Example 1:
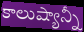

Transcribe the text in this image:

కాలుష్యాన్నీ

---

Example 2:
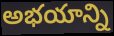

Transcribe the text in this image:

అభయాన్ని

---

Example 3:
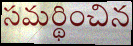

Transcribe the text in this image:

సమర్థించిన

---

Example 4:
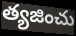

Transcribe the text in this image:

త్యజించు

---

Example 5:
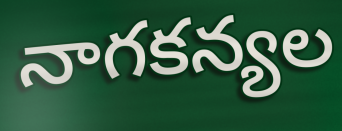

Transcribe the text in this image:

నాగకన్యల